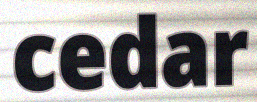
cedar